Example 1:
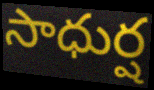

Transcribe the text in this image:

సాధుర్ష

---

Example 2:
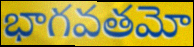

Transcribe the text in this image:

భాగవతమో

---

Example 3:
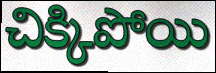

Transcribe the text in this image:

చిక్కిపోయి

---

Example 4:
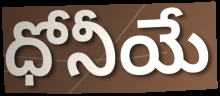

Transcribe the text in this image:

ధోనీయే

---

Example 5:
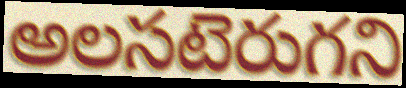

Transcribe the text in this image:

అలసటెరుగని